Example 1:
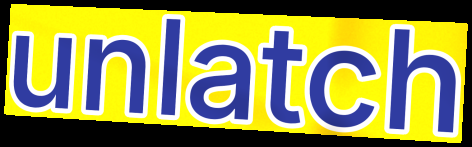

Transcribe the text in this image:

unlatch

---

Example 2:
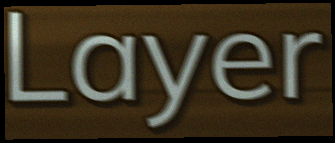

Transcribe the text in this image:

Layer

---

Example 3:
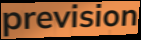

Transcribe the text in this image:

prevision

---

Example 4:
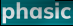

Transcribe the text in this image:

phasic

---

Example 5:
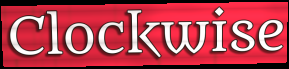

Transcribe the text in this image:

Clockwise